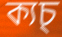
ক্যচ্